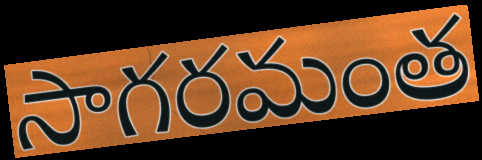
సాగరమంత